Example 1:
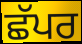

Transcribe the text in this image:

ਛੱਪਰ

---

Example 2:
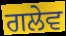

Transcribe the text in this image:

ਗਲੇਵ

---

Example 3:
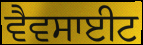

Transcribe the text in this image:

ਵੈਵਸਾਈਟ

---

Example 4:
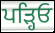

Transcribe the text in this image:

ਪੜ੍ਹਿਓ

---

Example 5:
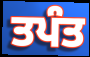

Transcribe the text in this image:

ਤਪੰਤ